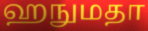
ஹநுமதா